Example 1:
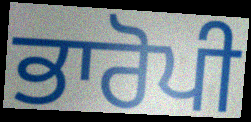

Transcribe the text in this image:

ਭਾਰੋਪੀ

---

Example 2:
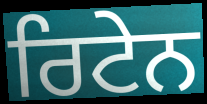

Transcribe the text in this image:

ਰਿਟੇਨ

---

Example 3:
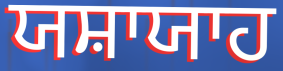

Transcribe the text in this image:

ਯਸ਼ਾਯਾਹ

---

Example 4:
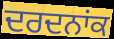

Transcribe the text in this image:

ਦਰਦਨਾਂਕ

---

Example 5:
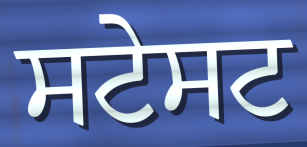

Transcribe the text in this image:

ਸਟੇਸਟ